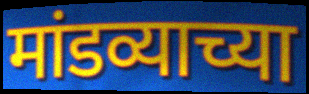
मांडव्याच्या